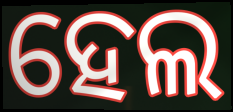
ହେଲ